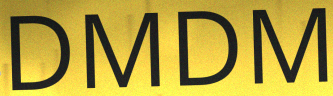
DMDM